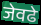
जेवढे